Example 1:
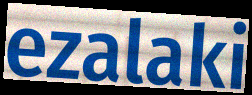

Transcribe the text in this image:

ezalaki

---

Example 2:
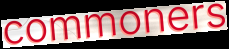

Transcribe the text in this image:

commoners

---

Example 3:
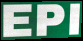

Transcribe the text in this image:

EPI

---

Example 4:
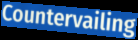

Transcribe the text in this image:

Countervailing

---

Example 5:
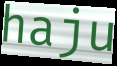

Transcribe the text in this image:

haju